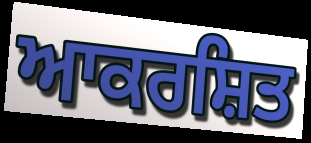
ਆਕਰਸ਼ਿਤ